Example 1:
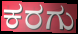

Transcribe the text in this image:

ಕರಗು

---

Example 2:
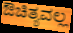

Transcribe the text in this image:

ಔಚಿತ್ಯವಲ್ಲ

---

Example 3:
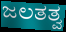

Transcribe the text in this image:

ಜಲತತ್ವ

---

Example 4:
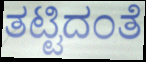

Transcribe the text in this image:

ತಟ್ಟಿದಂತೆ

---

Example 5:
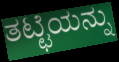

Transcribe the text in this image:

ತಟ್ಟೆಯನ್ನು